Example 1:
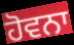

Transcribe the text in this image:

ਹੋਵਨਾ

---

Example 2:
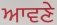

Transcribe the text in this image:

ਆਵਣੇ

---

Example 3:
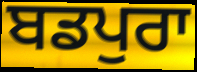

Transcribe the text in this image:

ਬਡਪੁਰਾ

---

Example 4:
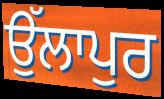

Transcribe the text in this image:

ਉੱਲਾਪੁਰ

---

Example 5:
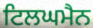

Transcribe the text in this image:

ਟਿਲਘਮੈਨ